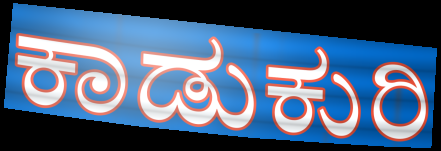
ಕಾಡುಕುರಿ